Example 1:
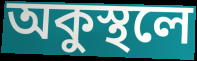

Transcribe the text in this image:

অকুস্থলে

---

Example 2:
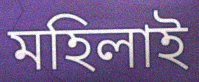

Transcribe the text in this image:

মহিলাই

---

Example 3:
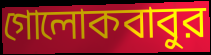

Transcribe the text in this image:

গোলোকবাবুর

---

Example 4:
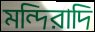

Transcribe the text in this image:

মন্দিরাদি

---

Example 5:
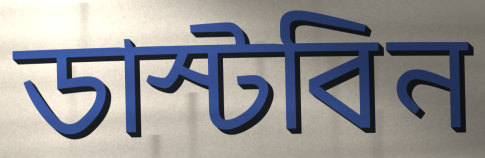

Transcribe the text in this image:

ডাস্টবিন